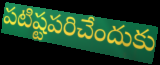
పటిష్టపరిచేందుకు